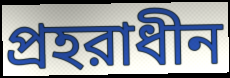
প্রহরাধীন